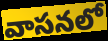
వాసనలో